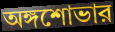
অঙ্গশোভার